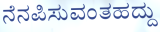
ನೆನಪಿಸುವಂತಹದ್ದು